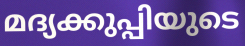
മദ്യക്കുപ്പിയുടെ